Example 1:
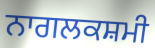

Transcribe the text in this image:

ਨਾਗਲਕਸ਼ਮੀ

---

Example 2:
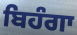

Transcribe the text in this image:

ਬਿਹੰਗਾ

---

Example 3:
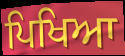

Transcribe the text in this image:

ਪਿਖਿਆ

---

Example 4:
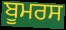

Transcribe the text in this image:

ਬੂਮਰਸ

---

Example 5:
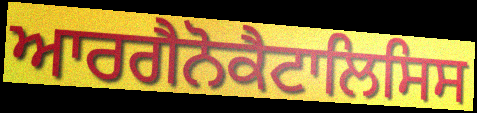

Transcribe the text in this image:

ਆਰਗੈਨੋਕੈਟਾਲਿਸਿਸ